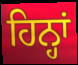
ਹਿਨ੍ਹਾਂ